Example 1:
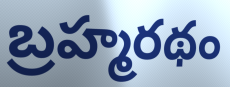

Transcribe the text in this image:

బ్రహ్మరథం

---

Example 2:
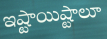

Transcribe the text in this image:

ఇష్టాయిష్టాలూ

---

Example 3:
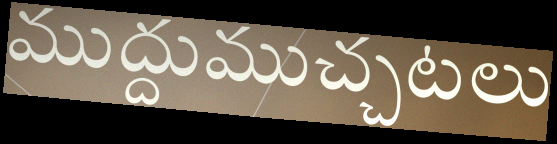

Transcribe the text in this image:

ముద్దుముచ్చటలు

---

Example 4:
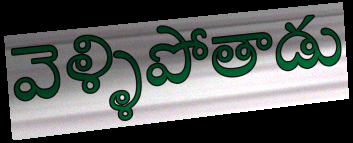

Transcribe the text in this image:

వెళ్ళిపోతాడు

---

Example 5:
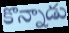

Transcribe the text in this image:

కొన్నాడు